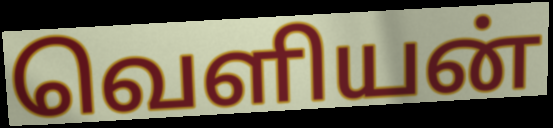
வெளியன்